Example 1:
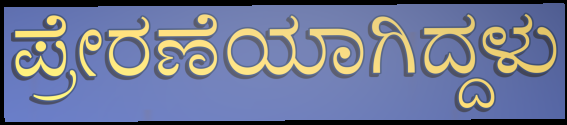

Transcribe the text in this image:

ಪ್ರೇರಣೆಯಾಗಿದ್ದಳು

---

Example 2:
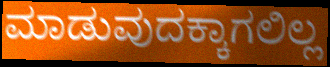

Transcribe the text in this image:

ಮಾಡುವುದಕ್ಕಾಗಲಿಲ್ಲ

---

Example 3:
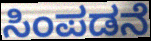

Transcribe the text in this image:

ಸಿಂಪಡನೆ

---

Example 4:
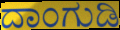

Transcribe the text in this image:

ದಾಂಗುಡಿ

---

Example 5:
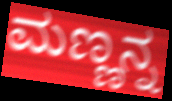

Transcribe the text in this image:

ಮಣ್ಣನ್ನ